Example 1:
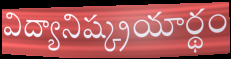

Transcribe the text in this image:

విద్యానిష్క్రయార్థం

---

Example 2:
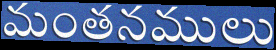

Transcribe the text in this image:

మంతనములు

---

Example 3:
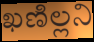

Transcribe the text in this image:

ఖణిల్లని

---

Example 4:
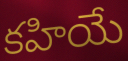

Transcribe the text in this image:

కహియే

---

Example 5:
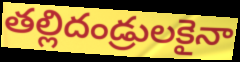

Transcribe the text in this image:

తల్లిదండ్రులకైనా